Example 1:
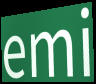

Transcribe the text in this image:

emi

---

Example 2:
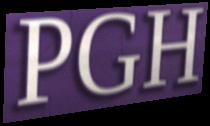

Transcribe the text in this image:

PGH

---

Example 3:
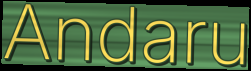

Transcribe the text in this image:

Andaru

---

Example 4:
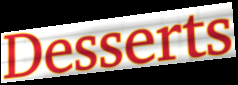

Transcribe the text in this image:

Desserts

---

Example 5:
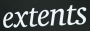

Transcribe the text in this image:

extents